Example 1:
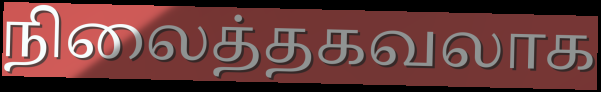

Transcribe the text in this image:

நிலைத்தகவலாக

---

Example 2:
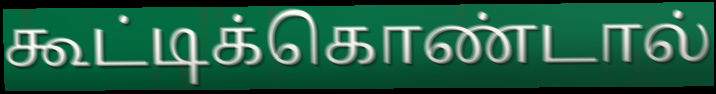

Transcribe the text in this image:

கூட்டிக்கொண்டால்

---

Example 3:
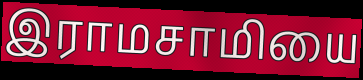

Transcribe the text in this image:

இராமசாமியை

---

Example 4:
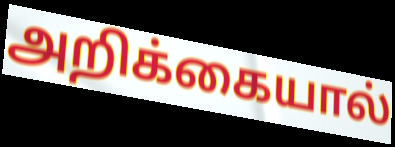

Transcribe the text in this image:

அறிக்கையால்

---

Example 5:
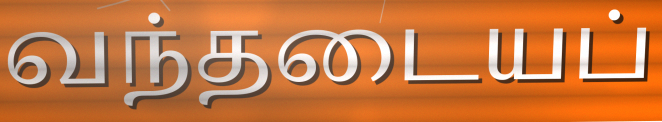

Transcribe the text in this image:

வந்தடையப்